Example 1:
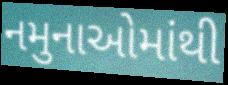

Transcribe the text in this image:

નમુનાઓમાંથી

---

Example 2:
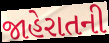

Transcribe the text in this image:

જાહેરાતની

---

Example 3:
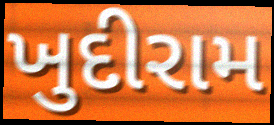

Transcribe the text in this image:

ખુદીરામ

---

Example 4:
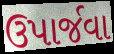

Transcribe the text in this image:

ઉપાર્જવા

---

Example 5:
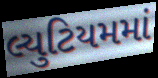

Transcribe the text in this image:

લ્યુટિયમમાં